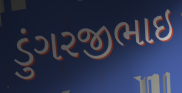
ડુંગરજીભાઇ